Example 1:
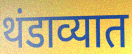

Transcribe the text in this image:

थंडाव्यात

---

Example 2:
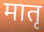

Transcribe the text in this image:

मातृ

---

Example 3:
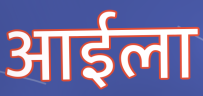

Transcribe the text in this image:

आईला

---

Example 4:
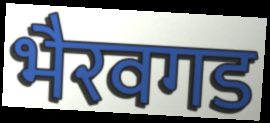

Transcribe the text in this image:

भैरवगड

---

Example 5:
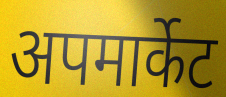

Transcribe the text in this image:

अपमार्केट